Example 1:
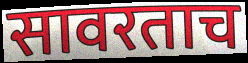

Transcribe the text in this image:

सावरताच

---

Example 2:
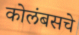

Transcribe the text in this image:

कोलंबसचे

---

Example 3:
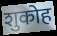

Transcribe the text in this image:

शुकोह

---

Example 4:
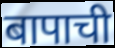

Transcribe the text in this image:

बापाची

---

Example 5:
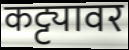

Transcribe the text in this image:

कट्ट्यावर